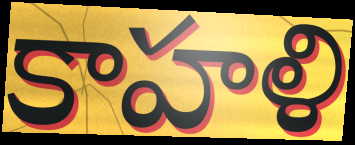
కాహళి